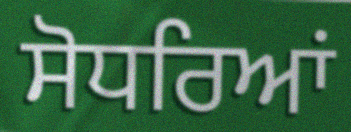
ਸੋਧਰਿਆਂ